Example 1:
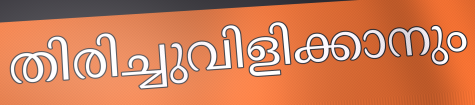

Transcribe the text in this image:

തിരിച്ചുവിളിക്കാനും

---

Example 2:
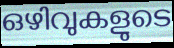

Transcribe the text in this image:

ഒഴിവുകളുടെ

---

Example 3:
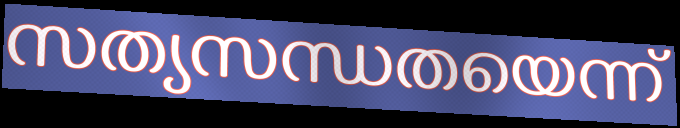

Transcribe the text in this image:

സത്യസന്ധതയെന്ന്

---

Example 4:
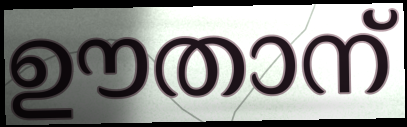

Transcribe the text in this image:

ഊതാന്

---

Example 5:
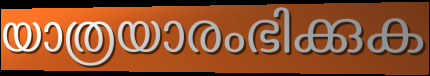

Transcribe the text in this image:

യാത്രയാരംഭിക്കുക